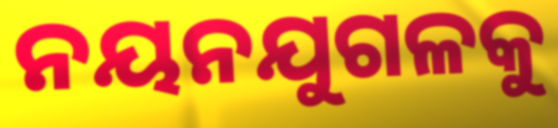
ନୟନଯୁଗଳକୁ